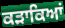
ਕੜਾਕਿਆਂ